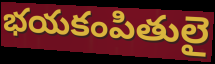
భయకంపితులై